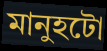
মানুহটো